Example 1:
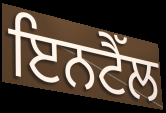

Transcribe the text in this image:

ਇਨਟੈੱਲ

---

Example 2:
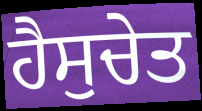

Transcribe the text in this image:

ਹੈਸੁਚੇਤ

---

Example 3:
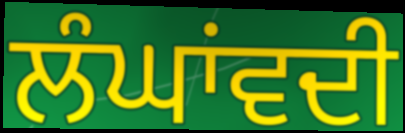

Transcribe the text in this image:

ਲੰਘਾਂਵਦੀ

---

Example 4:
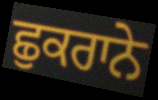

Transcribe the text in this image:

ਛੁਕਰਾਨੇ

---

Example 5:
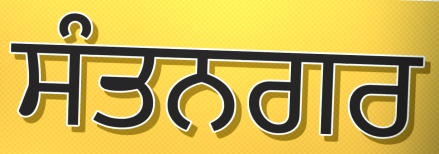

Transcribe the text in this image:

ਸੰਤਨਗਰ